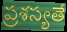
ప్రశస్యతే